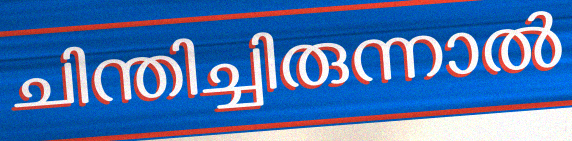
ചിന്തിച്ചിരുന്നാൽ